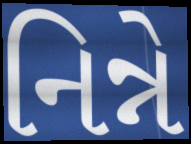
નિન્ને